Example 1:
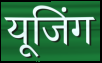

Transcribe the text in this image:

यूजिंग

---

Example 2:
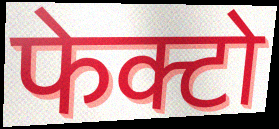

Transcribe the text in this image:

फेक्टो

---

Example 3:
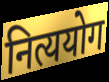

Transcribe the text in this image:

नित्ययोग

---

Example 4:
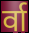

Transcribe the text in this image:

र्वा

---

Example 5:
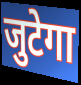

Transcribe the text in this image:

जुटेगा